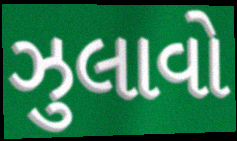
ઝુલાવો